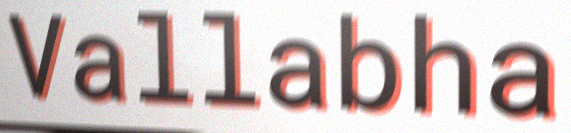
Vallabha